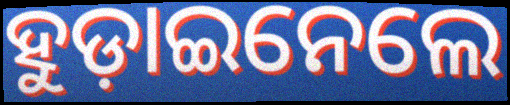
ହୁଡ଼ାଇନେଲେ